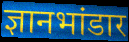
ज्ञानभांडार